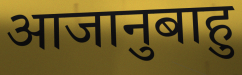
आजानुबाहु